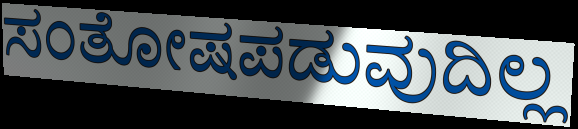
ಸಂತೋಷಪಡುವುದಿಲ್ಲ